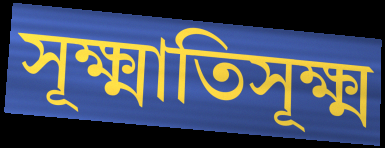
সূক্ষ্মাতিসূক্ষ্ম